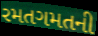
રમતગમતની